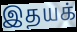
இதயக்